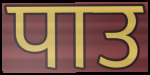
पाउ